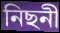
নিছনী